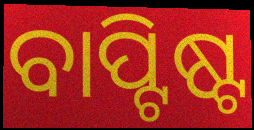
ବାପ୍ଟିଷ୍ଟ